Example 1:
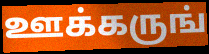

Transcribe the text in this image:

ஊக்கருங்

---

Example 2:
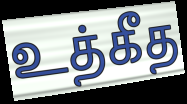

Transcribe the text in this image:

உத்கீத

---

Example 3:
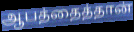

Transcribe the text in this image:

ஆபத்தைத்தான்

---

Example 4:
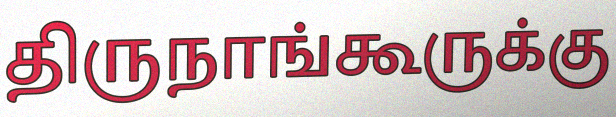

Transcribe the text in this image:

திருநாங்கூருக்கு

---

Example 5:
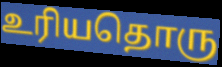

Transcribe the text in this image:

உரியதொரு